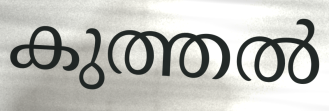
കുത്തൽ